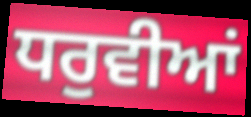
ਧਰੁਵੀਆਂ